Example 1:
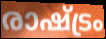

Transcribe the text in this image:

രാഷ്ട്രം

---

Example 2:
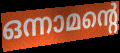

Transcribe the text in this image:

ഒന്നാമന്റെ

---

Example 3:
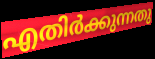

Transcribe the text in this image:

എതിർക്കുന്നതു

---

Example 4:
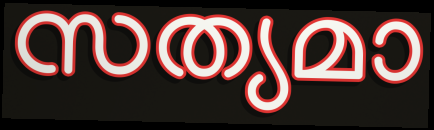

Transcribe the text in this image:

സത്യമാ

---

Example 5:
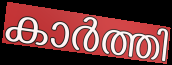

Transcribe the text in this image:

കാർത്തി